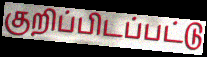
குறிப்பிடப்பட்டு